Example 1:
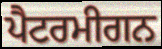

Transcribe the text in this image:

ਪੈਟਰਮੀਗਨ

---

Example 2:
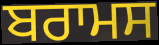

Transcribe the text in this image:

ਬਰਾਮਸ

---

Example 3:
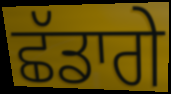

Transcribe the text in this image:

ਛੱਡਾਗੇ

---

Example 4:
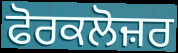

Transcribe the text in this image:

ਫੋਰਕਲੋਜ਼ਰ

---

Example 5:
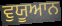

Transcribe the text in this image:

ਵੁਯੂਆਨ